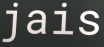
jais